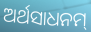
ଅର୍ଥସାଧନମ୍